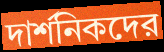
দার্শনিকদের